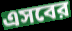
এসবের